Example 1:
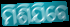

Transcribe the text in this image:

ମିଶିଯିବେ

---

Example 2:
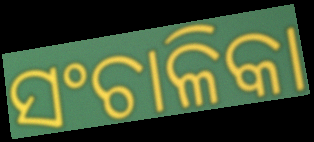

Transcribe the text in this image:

ସଂଚାଳିକା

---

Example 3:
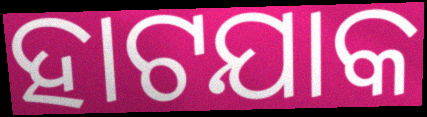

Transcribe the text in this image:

ହାଟଯାକ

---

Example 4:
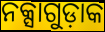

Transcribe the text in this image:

ନକ୍ସାଗୁଡ଼ାକ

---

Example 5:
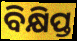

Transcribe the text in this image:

ବିକ୍ଷିପ୍ତ